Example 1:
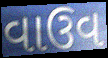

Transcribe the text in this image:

વાઉવ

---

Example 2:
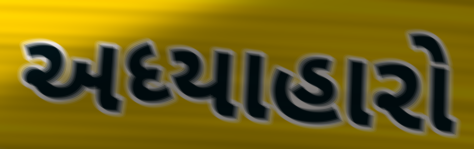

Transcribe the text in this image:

અધ્યાહારો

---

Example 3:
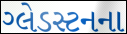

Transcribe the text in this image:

ગ્લેડસ્ટનના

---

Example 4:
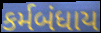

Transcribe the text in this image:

કર્મબંધાય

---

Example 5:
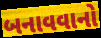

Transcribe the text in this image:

બનાવવાનો